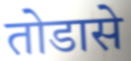
तोडासे